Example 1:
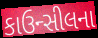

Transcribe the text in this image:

કાઉન્સીલના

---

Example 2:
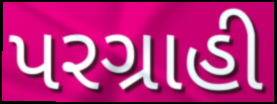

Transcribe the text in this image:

પરગ્રાહી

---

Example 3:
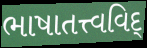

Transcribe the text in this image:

ભાષાતત્ત્વવિદ્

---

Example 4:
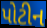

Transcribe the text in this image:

પોટીન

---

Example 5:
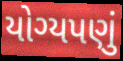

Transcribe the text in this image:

યોગ્યપણું